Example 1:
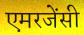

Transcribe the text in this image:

एमरजेंसी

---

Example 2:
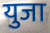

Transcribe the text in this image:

युजा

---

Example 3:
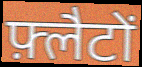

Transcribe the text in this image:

फ़्लैटों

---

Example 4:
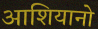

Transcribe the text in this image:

आशियानो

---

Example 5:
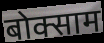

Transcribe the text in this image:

बोक्साम